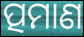
ତ୍ପମାଣ